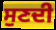
ਸੁਣਦੀ